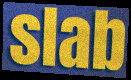
slab